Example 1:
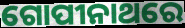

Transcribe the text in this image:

ଗୋପୀନାଥରେ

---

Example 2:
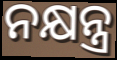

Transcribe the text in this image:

ନକ୍ଷନ୍ତ୍ର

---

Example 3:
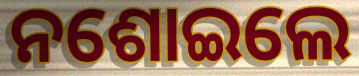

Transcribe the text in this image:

ନଶୋଇଲେ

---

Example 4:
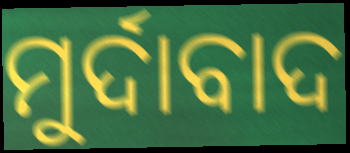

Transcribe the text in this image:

ମୁର୍ଦାବାଦ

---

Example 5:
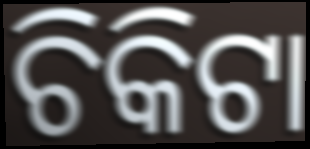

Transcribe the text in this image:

ଚିକିଟା